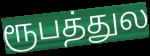
ரூபத்துல